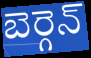
బెర్గెన్